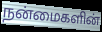
நன்மைகளின்